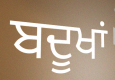
ਬਦੂਖਾਂ